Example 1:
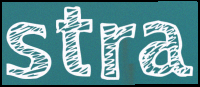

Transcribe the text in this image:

stra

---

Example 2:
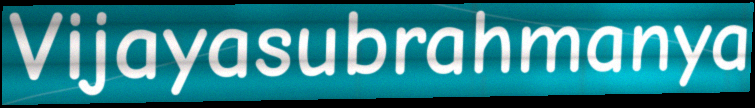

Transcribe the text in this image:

Vijayasubrahmanya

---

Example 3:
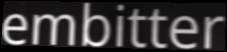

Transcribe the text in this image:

embitter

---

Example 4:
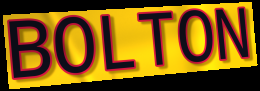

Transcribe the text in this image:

BOLTON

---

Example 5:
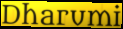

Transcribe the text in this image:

Dharumi